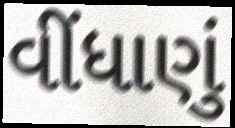
વીંધાણું